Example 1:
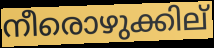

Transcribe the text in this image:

നീരൊഴുക്കില്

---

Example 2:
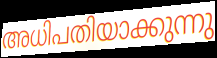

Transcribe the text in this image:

അധിപതിയാക്കുന്നു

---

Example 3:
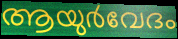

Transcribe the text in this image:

ആയുർവേദം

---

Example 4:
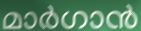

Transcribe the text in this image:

മാർഗാൻ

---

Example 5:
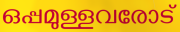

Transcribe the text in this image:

ഒപ്പമുള്ളവരോട്